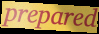
prepared